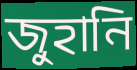
জুহানি